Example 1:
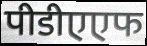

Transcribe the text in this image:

पीडीएएफ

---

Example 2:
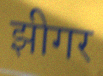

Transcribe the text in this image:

झीगर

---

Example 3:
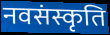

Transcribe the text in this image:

नवसंस्कृति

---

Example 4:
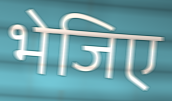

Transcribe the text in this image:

भेजिए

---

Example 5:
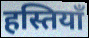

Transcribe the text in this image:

हस्तियॉं